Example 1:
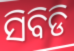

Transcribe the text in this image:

ସିବିଡି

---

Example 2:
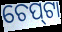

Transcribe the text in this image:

ଚେପ୍‍ଟା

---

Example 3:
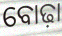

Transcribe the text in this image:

ବୋଢ଼ା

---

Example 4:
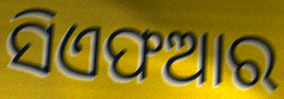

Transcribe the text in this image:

ସିଏଫଆର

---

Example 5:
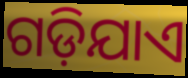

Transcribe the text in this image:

ଗଡ଼ିଯାଏ